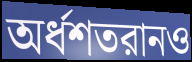
অর্ধশতরানও